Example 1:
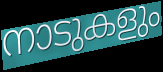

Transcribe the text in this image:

നാടുകളും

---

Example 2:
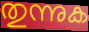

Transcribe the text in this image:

തുന്നുക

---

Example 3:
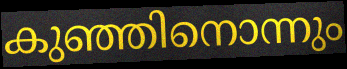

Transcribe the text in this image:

കുഞ്ഞിനൊന്നും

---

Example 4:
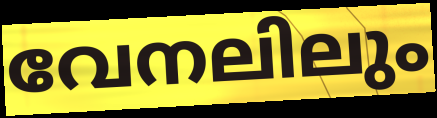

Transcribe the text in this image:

വേനലിലും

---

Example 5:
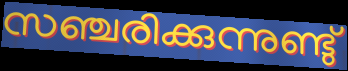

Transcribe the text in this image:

സഞ്ചരിക്കുന്നുണ്ടു്